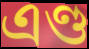
এণ্ড